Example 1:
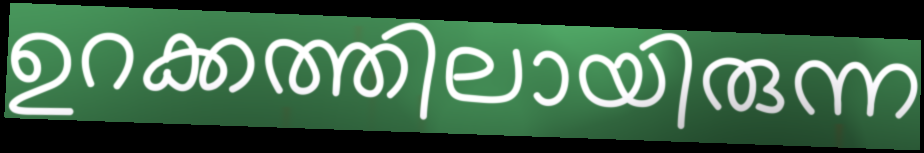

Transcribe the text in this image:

ഉറക്കത്തിലായിരുന്ന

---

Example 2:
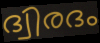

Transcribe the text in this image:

ദ്വിരദം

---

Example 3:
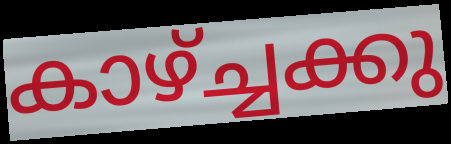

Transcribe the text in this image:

കാഴ്ച്ചക്കു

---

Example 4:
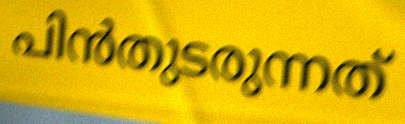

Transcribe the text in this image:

പിൻതുടരുന്നത്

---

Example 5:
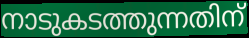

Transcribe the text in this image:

നാടുകടത്തുന്നതിന്